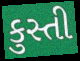
કુસ્તી